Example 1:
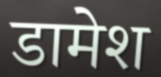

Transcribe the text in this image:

डामेश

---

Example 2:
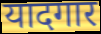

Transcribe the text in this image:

यादगार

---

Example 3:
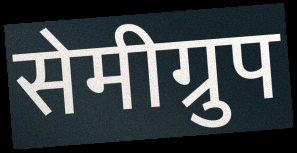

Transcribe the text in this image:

सेमीग्रुप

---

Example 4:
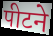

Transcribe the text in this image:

पीटने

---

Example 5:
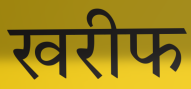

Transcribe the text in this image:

खरीफ